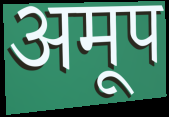
अमूप